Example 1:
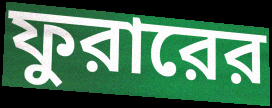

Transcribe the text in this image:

ফুরারের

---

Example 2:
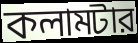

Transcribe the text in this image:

কলামটার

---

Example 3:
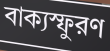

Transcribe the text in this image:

বাক্যস্ফুরণ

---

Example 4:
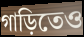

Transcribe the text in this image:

গাড়িতেও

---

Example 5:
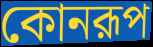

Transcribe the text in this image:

কোনরূপ